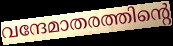
വന്ദേമാതരത്തിന്റെ